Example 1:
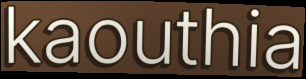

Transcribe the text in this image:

kaouthia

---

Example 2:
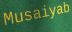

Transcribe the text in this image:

Musaiyab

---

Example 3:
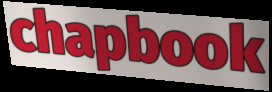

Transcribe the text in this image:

chapbook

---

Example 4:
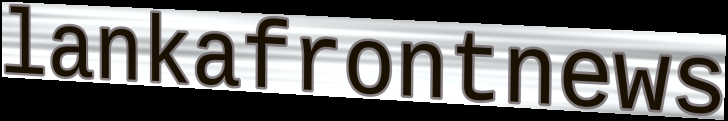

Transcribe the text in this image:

lankafrontnews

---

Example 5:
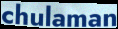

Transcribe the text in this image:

chulaman